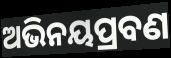
ଅଭିନୟପ୍ରବଣ